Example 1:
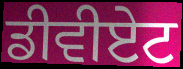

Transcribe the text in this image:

ਡੀਵੀਏਟ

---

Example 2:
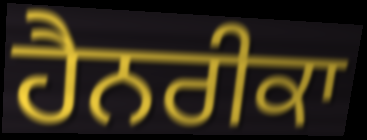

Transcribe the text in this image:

ਹੈਨਰੀਕਾ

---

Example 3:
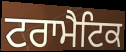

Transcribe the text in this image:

ਟਰਾਮੈਟਿਕ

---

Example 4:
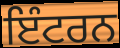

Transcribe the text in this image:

ਇੰਟਰਨ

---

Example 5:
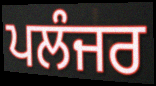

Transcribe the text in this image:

ਪਲੰਜਰ